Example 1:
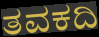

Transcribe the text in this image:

ತವಕದಿ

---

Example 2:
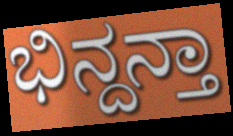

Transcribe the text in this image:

ಭಿನ್ದನ್ತಾ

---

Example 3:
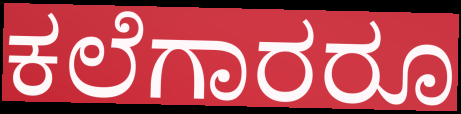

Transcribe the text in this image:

ಕಲೆಗಾರರೂ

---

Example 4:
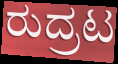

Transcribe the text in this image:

ರುದ್ರಟ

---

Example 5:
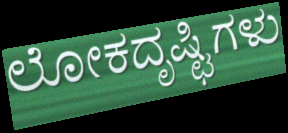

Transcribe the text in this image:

ಲೋಕದೃಷ್ಟಿಗಳು